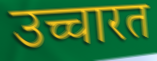
उच्चारत